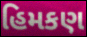
હિમકણ